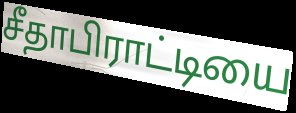
சீதாபிராட்டியை